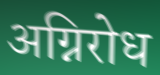
अग्निरोध